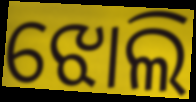
ଝୋଲି